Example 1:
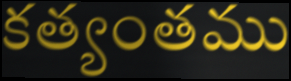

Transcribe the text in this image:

కత్యంతము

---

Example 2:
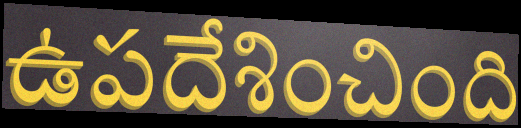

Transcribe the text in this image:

ఉపదేశించింది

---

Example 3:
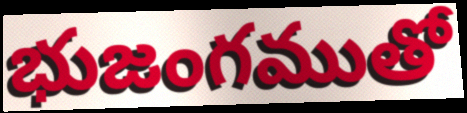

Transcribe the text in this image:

భుజంగముతో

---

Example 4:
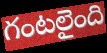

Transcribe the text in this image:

గంటలైంది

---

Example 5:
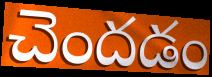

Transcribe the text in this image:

చెందడం